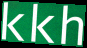
kkh